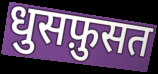
धुसफ़ुसत